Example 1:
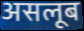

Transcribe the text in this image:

असलूब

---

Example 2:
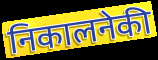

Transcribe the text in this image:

निकालनेकी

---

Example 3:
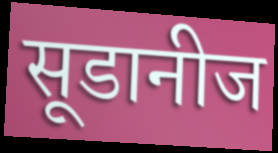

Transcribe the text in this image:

सूडानीज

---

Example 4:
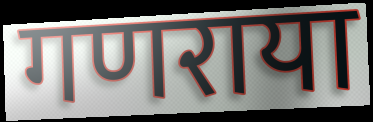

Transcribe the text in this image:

गणराया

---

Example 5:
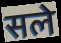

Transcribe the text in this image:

सले